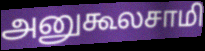
அனுகூலசாமி